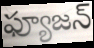
ఫ్యూజన్